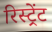
रिस्ट्रेंट